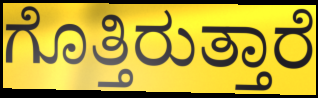
ಗೊತ್ತಿರುತ್ತಾರೆ